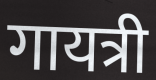
गायत्री